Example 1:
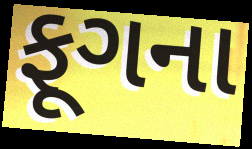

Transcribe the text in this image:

ફૂગના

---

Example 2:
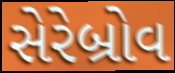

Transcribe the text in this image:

સેરેબ્રોવ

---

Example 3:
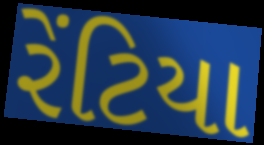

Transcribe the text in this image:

રેંટિયા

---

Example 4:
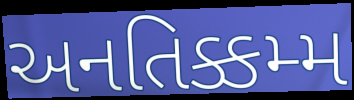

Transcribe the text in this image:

અનતિક્કમ્મ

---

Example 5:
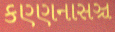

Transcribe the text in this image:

કણ્ણનાસઞ્ચ